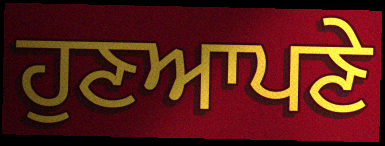
ਹੁਣਆਪਣੇ